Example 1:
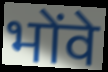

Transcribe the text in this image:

भोंवे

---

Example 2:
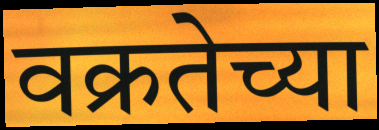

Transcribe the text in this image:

वक्रतेच्या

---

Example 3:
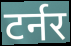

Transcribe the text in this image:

टर्नर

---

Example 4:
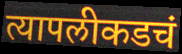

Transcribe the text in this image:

त्यापलीकडचं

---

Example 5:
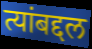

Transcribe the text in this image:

त्यांबद्दल